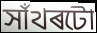
সাঁথৰটো